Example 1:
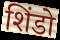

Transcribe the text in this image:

शिंडो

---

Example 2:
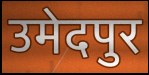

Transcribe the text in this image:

उमेदपुर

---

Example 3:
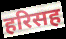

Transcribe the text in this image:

हरिसह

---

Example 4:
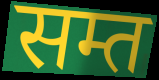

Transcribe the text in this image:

सम्त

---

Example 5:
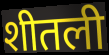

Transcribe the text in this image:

शीतली